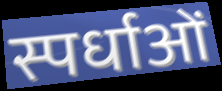
स्‍पर्धाओं